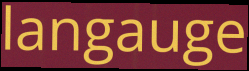
langauge